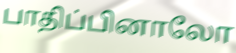
பாதிப்பினாலோ